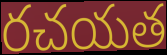
రచయత